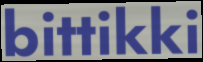
bittikki